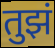
तुझं